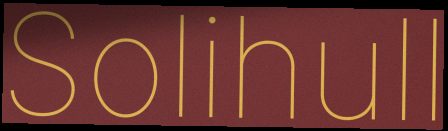
Solihull